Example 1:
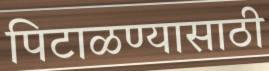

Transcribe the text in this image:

पिटाळण्यासाठी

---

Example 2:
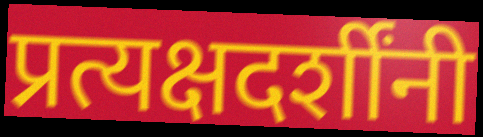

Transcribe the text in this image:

प्रत्यक्षदर्शींनी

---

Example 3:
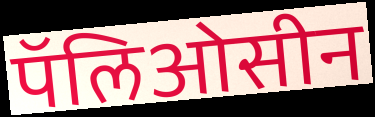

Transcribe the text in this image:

पॅलिओसीन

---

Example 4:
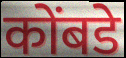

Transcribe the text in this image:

कोंबडे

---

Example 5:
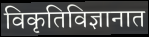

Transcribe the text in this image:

विकृतिविज्ञानात